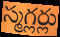
స్మగ్లర్లు